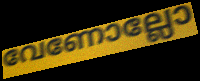
വേണോല്ലോ